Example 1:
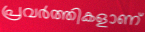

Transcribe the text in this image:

പ്രവർത്തികളാണ്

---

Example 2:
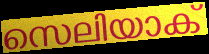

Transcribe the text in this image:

സെലിയാക്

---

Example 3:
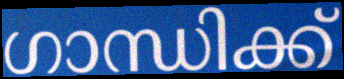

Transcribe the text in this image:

ഗാന്ധിക്ക്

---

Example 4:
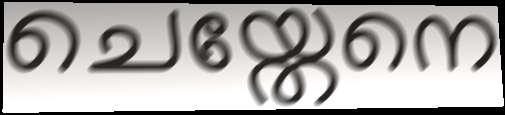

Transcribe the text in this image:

ചെയ്തേനെ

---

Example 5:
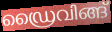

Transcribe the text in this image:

ഡ്രൈവിങ്ങ്